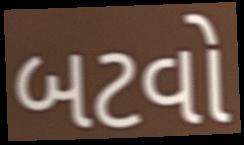
બટવો